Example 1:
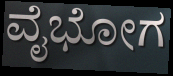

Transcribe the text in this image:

ವೈಭೋಗ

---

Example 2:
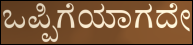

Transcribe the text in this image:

ಒಪ್ಪಿಗೆಯಾಗದೇ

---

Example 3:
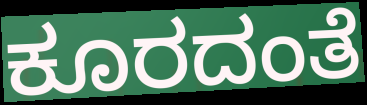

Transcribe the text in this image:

ಕೂರದಂತೆ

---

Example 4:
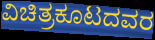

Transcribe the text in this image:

ವಿಚಿತ್ರಕೂಟದವರ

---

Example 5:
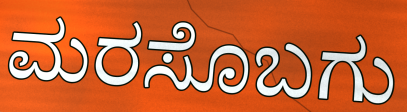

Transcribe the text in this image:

ಮರಸೊಬಗು